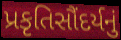
પ્રકૃતિસૌંદર્યનું